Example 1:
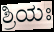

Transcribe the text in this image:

ಶ್ರಿಯಃ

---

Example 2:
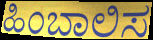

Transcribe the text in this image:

ಹಿಂಬಾಲಿಸ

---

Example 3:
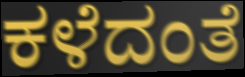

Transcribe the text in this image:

ಕಳೆದಂತೆ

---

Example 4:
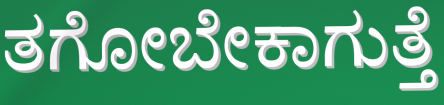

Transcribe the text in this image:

ತಗೋಬೇಕಾಗುತ್ತೆ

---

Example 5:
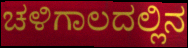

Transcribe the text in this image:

ಚಳಿಗಾಲದಲ್ಲಿನ